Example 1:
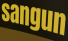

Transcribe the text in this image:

sangun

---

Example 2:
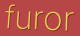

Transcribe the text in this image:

furor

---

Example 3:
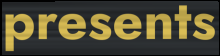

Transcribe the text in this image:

presents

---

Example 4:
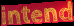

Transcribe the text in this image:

intend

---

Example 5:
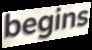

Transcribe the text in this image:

begins